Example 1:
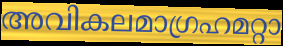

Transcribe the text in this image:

അവികലമാഗ്രഹമറ്റാ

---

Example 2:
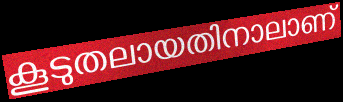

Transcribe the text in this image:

കൂടുതലായതിനാലാണ്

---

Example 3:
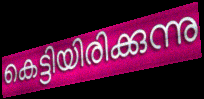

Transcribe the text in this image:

കെട്ടിയിരിക്കുന്നു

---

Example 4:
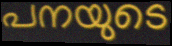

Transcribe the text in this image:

പനയുടെ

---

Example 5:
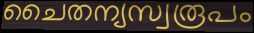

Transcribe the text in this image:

ചൈതന്യസ്വരൂപം